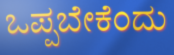
ಒಪ್ಪಬೇಕೆಂದು